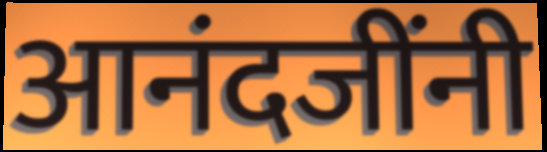
आनंदजींनी